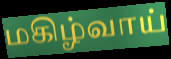
மகிழ்வாய்